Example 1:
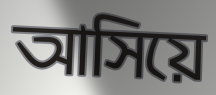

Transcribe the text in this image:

আসিয়ে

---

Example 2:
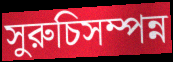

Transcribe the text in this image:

সুরুচিসম্পন্ন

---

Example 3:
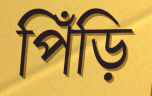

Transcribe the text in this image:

পিঁড়ি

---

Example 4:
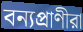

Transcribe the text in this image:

বন্যপ্রাণীরা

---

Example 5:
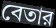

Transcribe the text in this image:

বেতার